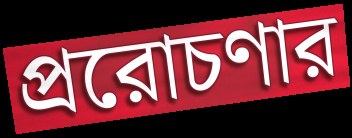
প্ররোচণার